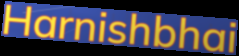
Harnishbhai